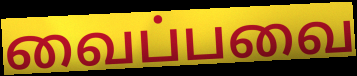
வைப்பவை